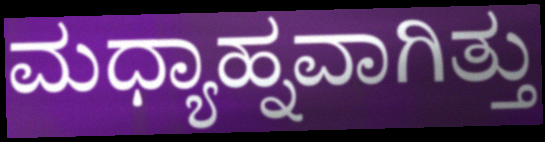
ಮಧ್ಯಾಹ್ನವಾಗಿತ್ತು